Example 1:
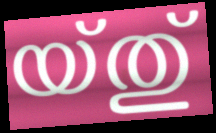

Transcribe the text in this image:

യ്തു്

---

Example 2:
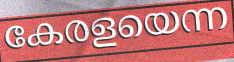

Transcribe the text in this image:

കേരളയെന്ന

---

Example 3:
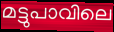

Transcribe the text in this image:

മട്ടുപാവിലെ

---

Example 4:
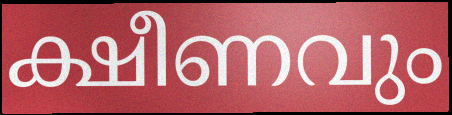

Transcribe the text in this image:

ക്ഷീണവും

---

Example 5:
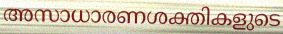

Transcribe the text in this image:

അസാധാരണശക്തികളുടെ